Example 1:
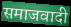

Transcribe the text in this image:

समाजवादी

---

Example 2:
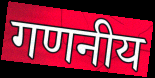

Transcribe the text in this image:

गणनीय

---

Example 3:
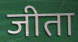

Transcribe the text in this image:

जीता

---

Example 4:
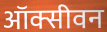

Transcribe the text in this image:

ऑक्सीवन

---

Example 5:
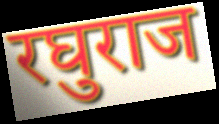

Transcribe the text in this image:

रघुराज